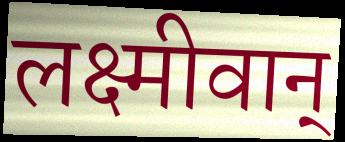
लक्ष्मीवान्